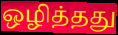
ஒழித்தது